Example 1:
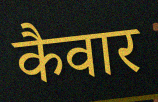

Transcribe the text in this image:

कैवार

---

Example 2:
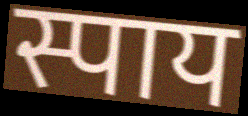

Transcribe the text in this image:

स्पाय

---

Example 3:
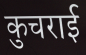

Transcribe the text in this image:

कुचराई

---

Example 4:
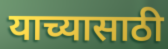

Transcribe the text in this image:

याच्यासाठी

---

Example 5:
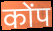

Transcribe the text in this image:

कोंप